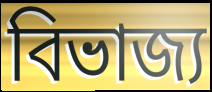
বিভাজ্য